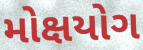
મોક્ષયોગ